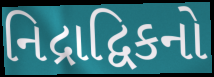
નિદ્રાદ્વિકનો